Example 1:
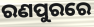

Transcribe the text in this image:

ରଣପୁରରେ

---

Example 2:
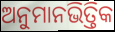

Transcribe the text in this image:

ଅନୁମାନଭିତ୍ତିକ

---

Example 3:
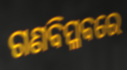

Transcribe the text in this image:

ଗଣବିପ୍ଳବରେ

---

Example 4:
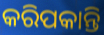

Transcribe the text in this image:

କରିପକାନ୍ତି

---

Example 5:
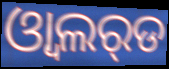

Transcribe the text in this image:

ଓ୍ବାଲର୍‌ଡ